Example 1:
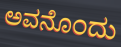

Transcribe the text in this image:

ಅವನೊಂದು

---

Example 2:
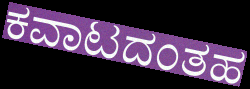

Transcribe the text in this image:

ಕವಾಟದಂತಹ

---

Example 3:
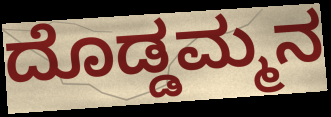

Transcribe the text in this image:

ದೊಡ್ಡಮ್ಮನ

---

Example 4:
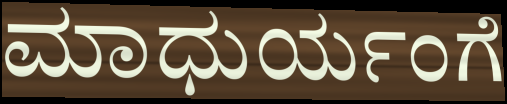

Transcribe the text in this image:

ಮಾಧುರ್ಯಂಗೆ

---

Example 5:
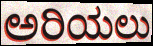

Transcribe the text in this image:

ಅರಿಯಲು